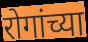
रोगांच्या